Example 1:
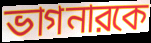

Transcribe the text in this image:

ভাগনারকে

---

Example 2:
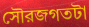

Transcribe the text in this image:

সৌরজগতটা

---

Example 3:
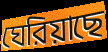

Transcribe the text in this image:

ঘেরিয়াছে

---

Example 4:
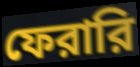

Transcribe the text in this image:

ফেরারি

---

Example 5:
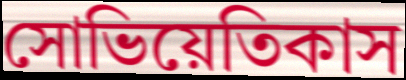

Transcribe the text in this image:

সোভিয়েতিকাস